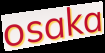
osaka